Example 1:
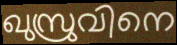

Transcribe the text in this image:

ഖുസ്രുവിനെ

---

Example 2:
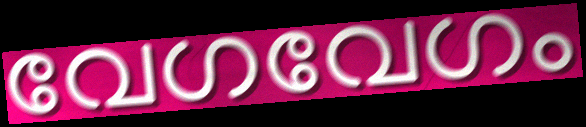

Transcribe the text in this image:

വേഗവേഗം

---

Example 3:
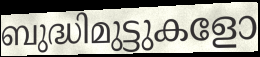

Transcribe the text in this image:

ബുദ്ധിമുട്ടുകളോ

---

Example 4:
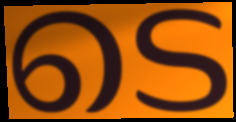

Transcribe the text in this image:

ടെ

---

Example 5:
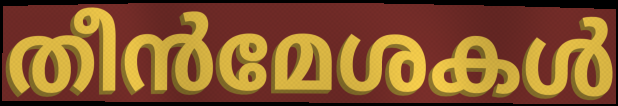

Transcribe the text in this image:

തീൻമേശകൾ